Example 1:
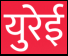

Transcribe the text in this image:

युरेई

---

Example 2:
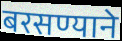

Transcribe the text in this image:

बरसण्याने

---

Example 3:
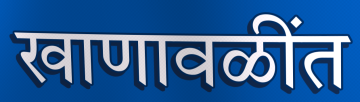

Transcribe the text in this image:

खाणावळींत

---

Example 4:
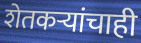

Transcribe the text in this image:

शेतकऱ्यांचाही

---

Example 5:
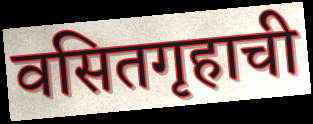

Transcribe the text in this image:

वसितगृहाची